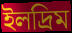
ইলদ্রিম